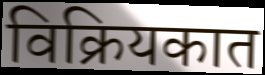
विक्रियकात